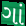
ગાં